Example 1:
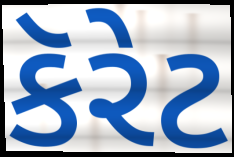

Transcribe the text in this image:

કૅરેટ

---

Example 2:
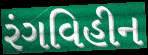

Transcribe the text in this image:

રંગવિહીન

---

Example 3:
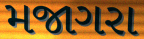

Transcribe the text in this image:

મજાગરા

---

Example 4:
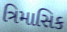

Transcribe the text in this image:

ત્રિમાસિક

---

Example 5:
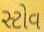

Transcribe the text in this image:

સ્ટોવ